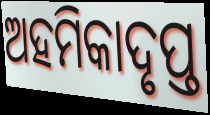
ଅହମିକାଦୃପ୍ତ